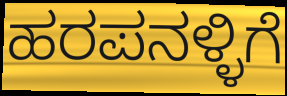
ಹರಪನಳ್ಳಿಗೆ